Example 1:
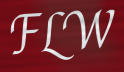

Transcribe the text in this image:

FLW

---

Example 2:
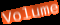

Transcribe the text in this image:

Volume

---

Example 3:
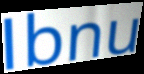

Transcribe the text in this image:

Ibnu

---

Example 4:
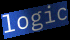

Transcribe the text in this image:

logic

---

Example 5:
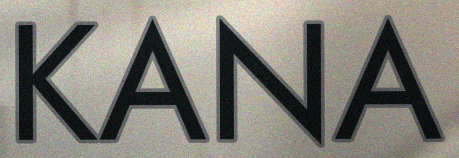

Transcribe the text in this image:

KANA